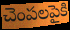
చెంపలపైకి